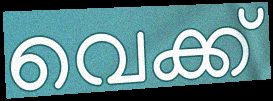
വെക്ക്